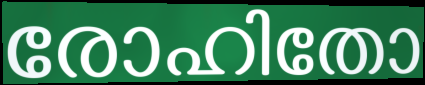
രോഹിതോ